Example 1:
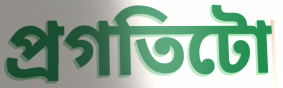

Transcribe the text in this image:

প্ৰগতিটো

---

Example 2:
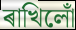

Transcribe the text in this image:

ৰাখিলোঁ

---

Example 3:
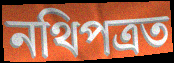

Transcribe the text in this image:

নথিপত্ৰত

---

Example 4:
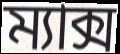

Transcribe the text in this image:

ম্যাক্স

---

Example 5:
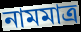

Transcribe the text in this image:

নামমাত্ৰ